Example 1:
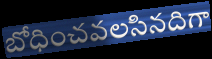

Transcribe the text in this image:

బోధించవలసినదిగా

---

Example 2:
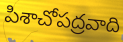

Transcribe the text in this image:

పిశాచోపద్రవాది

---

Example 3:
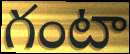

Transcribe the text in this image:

గంటా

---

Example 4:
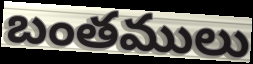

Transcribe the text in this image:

బంతములు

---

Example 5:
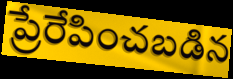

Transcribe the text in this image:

ప్రేరేపించబడిన